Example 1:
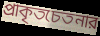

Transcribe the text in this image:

প্রাকৃতচেতনার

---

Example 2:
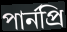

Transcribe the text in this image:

পার্নপ্রি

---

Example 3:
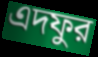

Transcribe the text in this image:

এদফুর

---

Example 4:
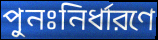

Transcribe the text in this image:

পুনঃনির্ধারণে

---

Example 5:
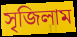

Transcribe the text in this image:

সৃজিলাম